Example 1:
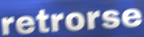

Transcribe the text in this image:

retrorse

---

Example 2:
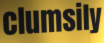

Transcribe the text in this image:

clumsily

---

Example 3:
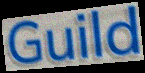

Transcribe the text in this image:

Guild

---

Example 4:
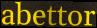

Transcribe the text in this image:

abettor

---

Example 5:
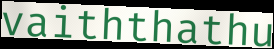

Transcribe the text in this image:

vaiththathu